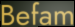
Befam